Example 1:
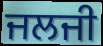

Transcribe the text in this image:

ਜਲਜੀ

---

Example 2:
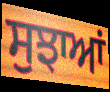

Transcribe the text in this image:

ਸੁਝਾਆਂ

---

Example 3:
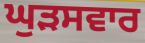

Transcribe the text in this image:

ਘੁੜਸਵਾਰ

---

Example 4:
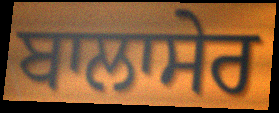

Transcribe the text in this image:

ਬਾਲਾਸੇਰ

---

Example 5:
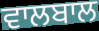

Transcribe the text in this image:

ਵਾਲਬਾਲ